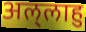
अल्लाहु